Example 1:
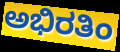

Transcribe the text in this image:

ಅಭಿರತಿಂ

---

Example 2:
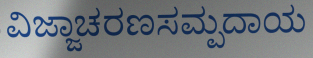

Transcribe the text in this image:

ವಿಜ್ಜಾಚರಣಸಮ್ಪದಾಯ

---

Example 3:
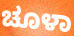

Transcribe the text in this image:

ಚೂಳಾ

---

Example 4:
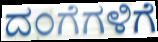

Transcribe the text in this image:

ದಂಗೆಗಳಿಗೆ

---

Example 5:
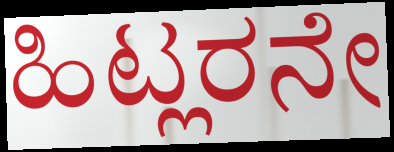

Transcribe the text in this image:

ಹಿಟ್ಲರನೇ